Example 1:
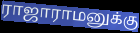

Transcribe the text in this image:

ராஜாராமனுக்கு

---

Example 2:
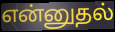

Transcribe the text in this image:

என்னுதல்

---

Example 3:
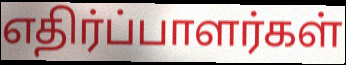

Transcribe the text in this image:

எதிர்ப்பாளர்கள்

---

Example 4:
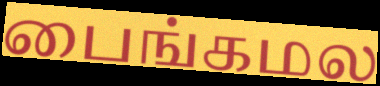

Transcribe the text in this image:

பைங்கமல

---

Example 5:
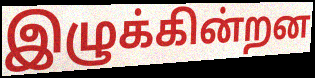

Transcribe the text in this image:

இழுக்கின்றன